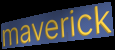
maverick